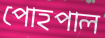
পোহপাল